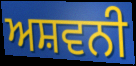
ਅਸ਼ਵਨੀ